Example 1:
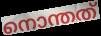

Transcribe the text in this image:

നൊന്തത്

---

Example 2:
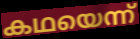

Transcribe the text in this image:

കഥയെന്ന്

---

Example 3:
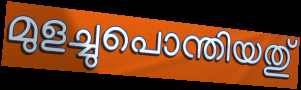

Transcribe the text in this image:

മുളച്ചുപൊന്തിയതു്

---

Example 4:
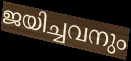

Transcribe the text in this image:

ജയിച്ചവനും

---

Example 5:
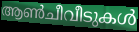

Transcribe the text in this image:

ആൺചീവീടുകൾ